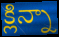
క్లిన్నా